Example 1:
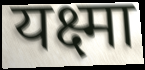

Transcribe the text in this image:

यक्ष्मा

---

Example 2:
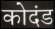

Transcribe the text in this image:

कोदंड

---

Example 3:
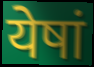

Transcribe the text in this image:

येषां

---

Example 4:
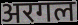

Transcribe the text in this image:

अरगल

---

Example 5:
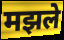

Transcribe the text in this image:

मझले